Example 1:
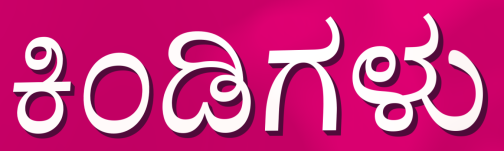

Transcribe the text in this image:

ಕಿಂಡಿಗಳು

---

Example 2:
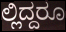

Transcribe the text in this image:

ಲ್ಲಿದ್ದರೂ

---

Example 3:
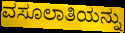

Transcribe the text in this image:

ವಸೂಲಾತಿಯನ್ನು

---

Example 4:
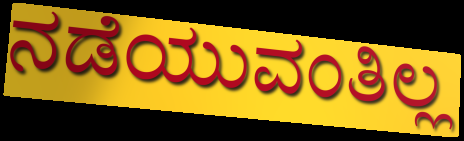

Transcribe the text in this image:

ನಡೆಯುವಂತಿಲ್ಲ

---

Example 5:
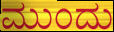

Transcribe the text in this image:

ಮುಂದು